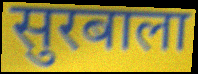
सुरबाला